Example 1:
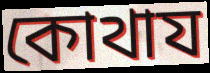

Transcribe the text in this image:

কোথায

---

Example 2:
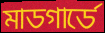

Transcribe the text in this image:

মাডগার্ডে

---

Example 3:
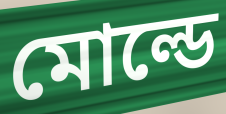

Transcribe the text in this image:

মোল্ডে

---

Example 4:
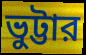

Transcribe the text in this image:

ভুট্টার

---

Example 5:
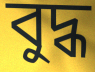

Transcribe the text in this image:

বুদ্ধ